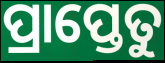
ପ୍ରାପ୍ତେତୁ